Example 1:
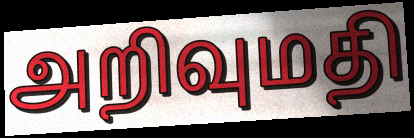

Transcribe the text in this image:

அறிவுமதி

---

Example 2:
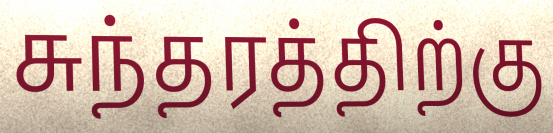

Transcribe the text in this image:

சுந்தரத்திற்கு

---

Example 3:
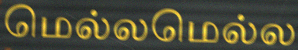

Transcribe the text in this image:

மெல்லமெல்ல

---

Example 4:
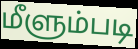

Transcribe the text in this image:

மீளும்படி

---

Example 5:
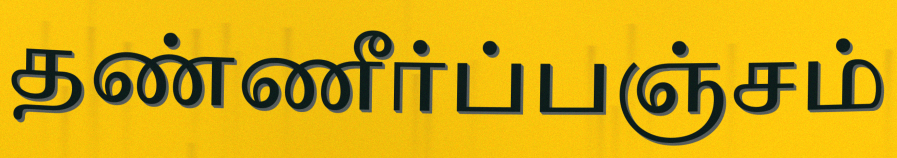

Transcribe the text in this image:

தண்ணீர்ப்பஞ்சம்